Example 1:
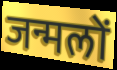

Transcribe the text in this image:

जन्मलों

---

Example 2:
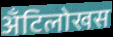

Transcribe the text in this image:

अँटिलोखस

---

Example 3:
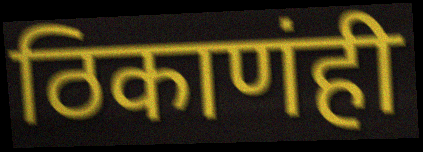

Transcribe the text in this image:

ठिकाणंही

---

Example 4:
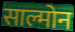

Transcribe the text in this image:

साल्मोन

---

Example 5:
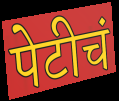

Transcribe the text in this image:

पेटीचं